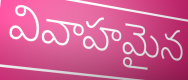
వివాహమైన